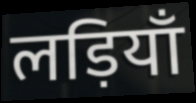
लड़ियाँ